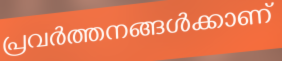
പ്രവർത്തനങ്ങൾക്കാണ്